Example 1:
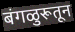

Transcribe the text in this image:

बंगळुरूतून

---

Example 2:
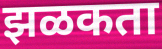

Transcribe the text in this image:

झळकता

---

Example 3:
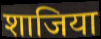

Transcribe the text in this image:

शाजिया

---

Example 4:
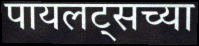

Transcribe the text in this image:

पायलट्सच्या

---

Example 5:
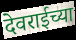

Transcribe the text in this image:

देवराईच्या